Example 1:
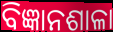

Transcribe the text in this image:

ବିଜ୍ଞାନଶାଳା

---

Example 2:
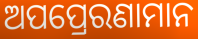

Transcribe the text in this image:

ଅପପ୍ରେରଣାମାନ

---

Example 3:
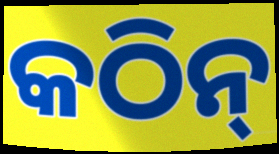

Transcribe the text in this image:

କଠିନ୍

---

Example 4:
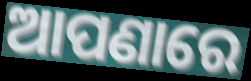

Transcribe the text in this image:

ଆପଣାରେ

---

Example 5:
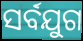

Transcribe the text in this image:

ସର୍ବଯୁଗ